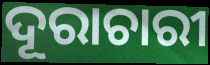
ଦୂରାଚାରୀ